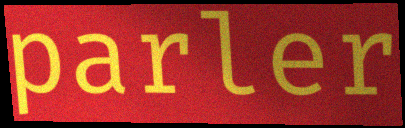
parler